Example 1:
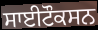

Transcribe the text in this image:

ਸਾਈਟੌਕਸਨ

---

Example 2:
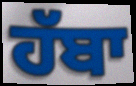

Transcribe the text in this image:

ਹੱਬਾ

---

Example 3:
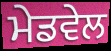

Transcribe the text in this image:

ਮੇਡਵੇਲ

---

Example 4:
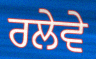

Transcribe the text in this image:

ਰਲੇਵੇ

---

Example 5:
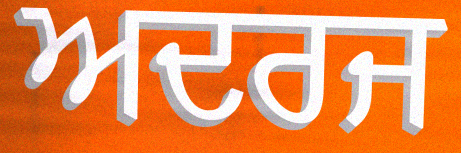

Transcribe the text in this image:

ਅਦਰਜ